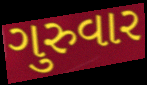
ગુરુવાર